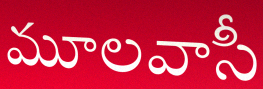
మూలవాసీ